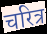
चरित्र